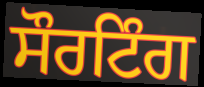
ਸੌਰਟਿੰਗ